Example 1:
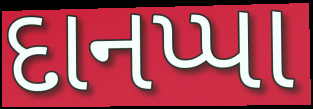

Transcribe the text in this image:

દાનપ્પા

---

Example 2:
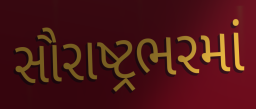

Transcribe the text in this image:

સૌરાષ્ટ્રભરમાં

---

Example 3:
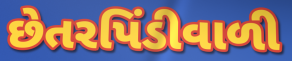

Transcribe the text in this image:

છેતરપિંડીવાળી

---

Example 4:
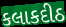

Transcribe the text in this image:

કલાકદીઠ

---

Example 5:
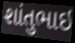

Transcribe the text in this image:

શાંતુભાઇ